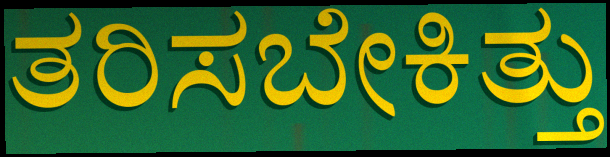
ತರಿಸಬೇಕಿತ್ತು